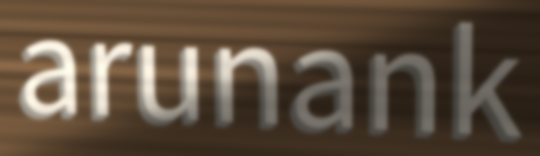
arunank